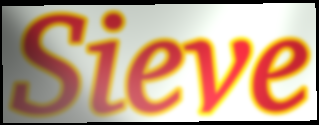
Sieve